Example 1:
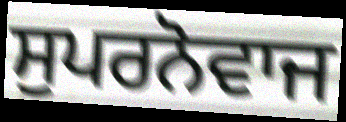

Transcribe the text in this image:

ਸੁਪਰਨੋਵਾਜ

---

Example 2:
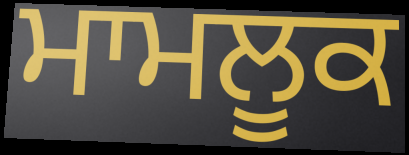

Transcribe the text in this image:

ਮਾਮਲੂਕ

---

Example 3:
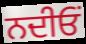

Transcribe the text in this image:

ਨਦੀਓਂ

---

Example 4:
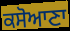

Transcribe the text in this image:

ਕਸੋਆਣਾ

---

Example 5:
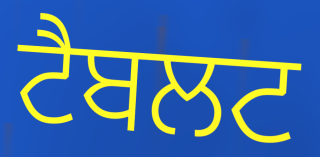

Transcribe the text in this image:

ਟੈਬਲਟ